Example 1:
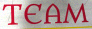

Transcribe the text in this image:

TEAM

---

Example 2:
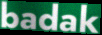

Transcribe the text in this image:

badak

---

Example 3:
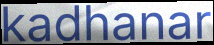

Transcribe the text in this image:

kadhanar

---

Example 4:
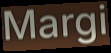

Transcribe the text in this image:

Margi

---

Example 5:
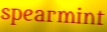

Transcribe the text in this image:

spearmint